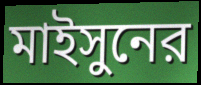
মাইসুনের